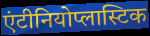
एंटीनियोप्लास्टिक